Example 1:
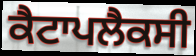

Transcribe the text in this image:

ਕੈਟਾਪਲੈਕਸੀ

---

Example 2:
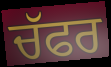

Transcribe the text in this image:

ਚੱਫਰ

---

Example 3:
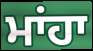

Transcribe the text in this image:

ਮਾਂਹਾ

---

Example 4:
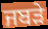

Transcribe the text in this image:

ਜਬੜੇ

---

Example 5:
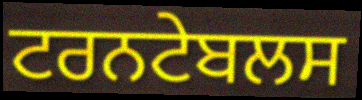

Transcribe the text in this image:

ਟਰਨਟੇਬਲਸ